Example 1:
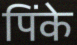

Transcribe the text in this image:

पिंके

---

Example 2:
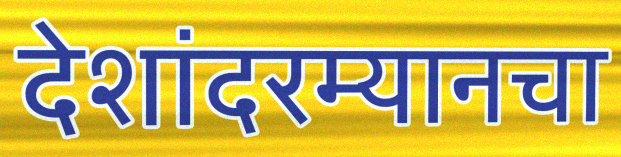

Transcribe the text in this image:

देशांदरम्यानचा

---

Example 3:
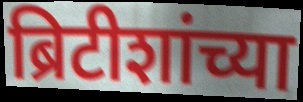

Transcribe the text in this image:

ब्रिटीशांच्या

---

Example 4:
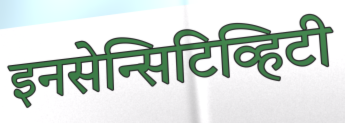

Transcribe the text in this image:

इनसेन्सिटिव्हिटी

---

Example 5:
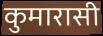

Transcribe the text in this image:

कुमारासी